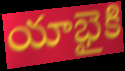
యాభైకి